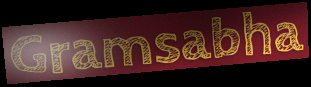
Gramsabha